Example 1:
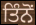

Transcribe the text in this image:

ਤਿੰਨੋਂ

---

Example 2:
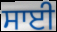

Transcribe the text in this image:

ਸਾਈ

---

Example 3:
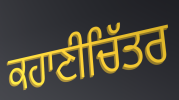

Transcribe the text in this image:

ਕਹਾਣੀਚਿੱਤਰ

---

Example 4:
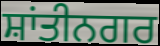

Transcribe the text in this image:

ਸ਼ਾਂਤੀਨਗਰ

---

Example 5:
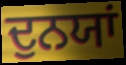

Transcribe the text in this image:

ਦੁਨਯਾਂ